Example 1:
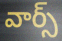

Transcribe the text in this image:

వార్స్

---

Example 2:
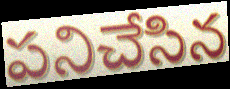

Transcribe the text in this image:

పనిచేసిన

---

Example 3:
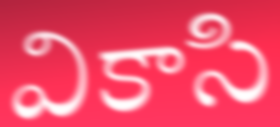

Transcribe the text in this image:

వికాసి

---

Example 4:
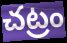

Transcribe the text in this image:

చట్రం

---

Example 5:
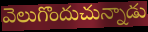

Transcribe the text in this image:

వెలుగొందుచున్నాడు